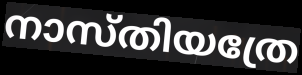
നാസ്തിയത്രേ